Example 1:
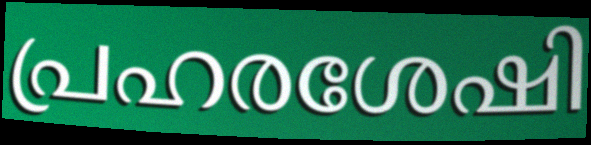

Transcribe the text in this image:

പ്രഹരശേഷി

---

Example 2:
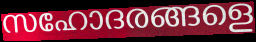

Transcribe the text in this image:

സഹോദരങ്ങളെ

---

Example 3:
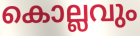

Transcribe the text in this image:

കൊല്ലവും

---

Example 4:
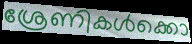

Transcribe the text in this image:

ശ്രേണികൾക്കൊ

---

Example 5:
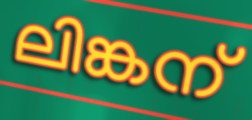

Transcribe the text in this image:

ലിങ്കന്